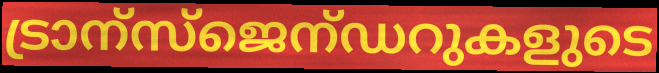
ട്രാന്സ്ജെന്ഡറുകളുടെ